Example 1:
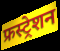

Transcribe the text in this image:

फ्रस्‍ट्रेशन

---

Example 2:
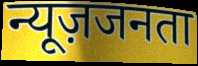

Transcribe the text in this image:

न्यूज़जनता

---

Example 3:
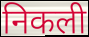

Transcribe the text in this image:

निकली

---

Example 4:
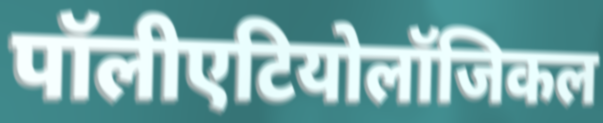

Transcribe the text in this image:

पॉलीएटियोलॉजिकल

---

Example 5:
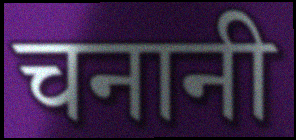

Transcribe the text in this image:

चनानी